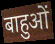
बाहुओं